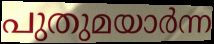
പുതുമയാർന്ന